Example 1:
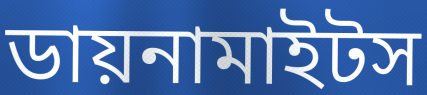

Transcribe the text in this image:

ডায়নামাইটস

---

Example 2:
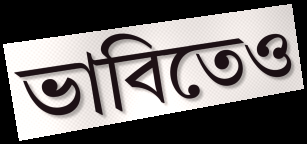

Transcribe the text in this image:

ভাবিতেও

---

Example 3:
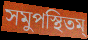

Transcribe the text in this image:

সমুপস্থিতম্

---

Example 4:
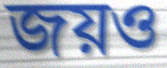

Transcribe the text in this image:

জয়ও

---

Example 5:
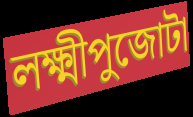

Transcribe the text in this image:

লক্ষ্মীপুজোটা